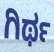
ಗಿರ್ಥ